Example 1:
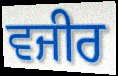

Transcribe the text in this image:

ਵਜੀਰ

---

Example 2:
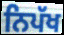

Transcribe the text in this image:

ਨਿਪੱਖ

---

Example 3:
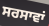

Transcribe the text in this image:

ਸਰਸਾਵਾਂ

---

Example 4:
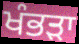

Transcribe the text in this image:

ਖੰਭੜਾ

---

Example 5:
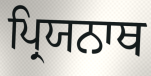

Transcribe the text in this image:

ਪ੍ਰਿਯਨਾਥ